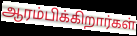
ஆரம்பிக்கிறார்கள்